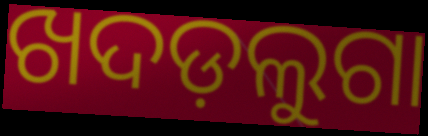
ଖଦଡ଼ଲୁଗା